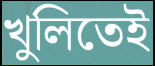
খুলিতেই